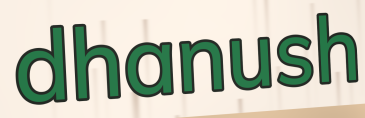
dhanush